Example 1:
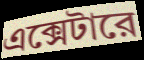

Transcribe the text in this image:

এক্সেটারে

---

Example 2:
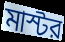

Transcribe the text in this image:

মাস্টর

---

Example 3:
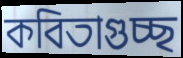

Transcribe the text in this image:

কবিতাগুচ্ছ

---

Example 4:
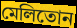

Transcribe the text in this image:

মেলিতোন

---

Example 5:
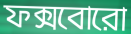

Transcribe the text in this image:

ফক্সবোরো